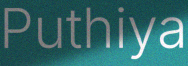
Puthiya